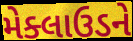
મેક્લાઉડને